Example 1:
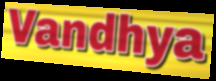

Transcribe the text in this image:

Vandhya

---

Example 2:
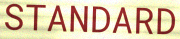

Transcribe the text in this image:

STANDARD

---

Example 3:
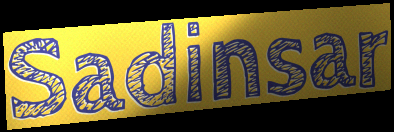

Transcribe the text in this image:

Sadinsar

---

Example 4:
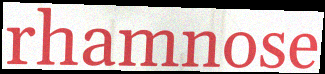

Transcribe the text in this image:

rhamnose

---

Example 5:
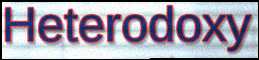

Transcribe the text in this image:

Heterodoxy